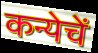
कन्येचें